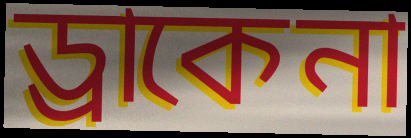
ড্রাকেনা